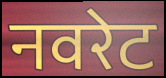
नवरेट